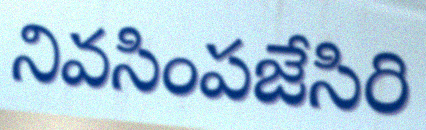
నివసింపజేసిరి